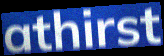
athirst